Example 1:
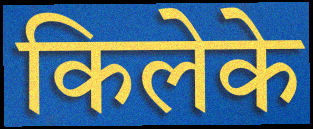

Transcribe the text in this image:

किलेके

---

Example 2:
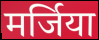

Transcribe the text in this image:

मर्जिया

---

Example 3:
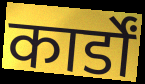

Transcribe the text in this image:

कार्डों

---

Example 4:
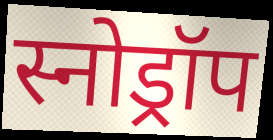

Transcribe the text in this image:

स्नोड्रॉप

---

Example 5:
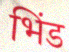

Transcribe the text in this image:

भिंड